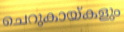
ചെറുകായ്കളും